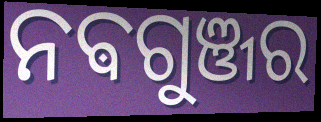
ନଵଗୁଞ୍ଜର